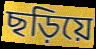
ছড়িয়ে